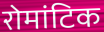
रोमांटिक